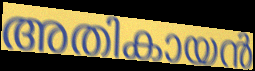
അതികായൻ